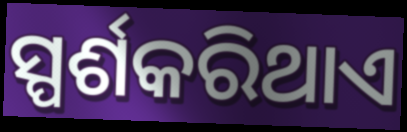
ସ୍ପର୍ଶକରିଥାଏ